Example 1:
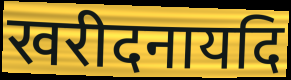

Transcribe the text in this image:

खरीदनायदि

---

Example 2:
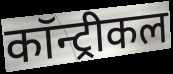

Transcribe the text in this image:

कॉन्ट्रीकल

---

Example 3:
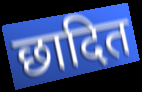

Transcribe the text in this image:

छादित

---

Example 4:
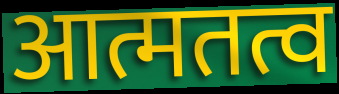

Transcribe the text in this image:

आत्मतत्व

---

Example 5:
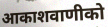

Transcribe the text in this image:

आकाशवाणीको